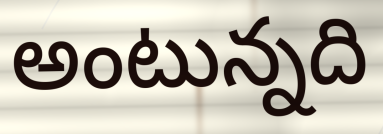
అంటున్నది